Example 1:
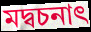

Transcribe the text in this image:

মদ্বচনাৎ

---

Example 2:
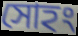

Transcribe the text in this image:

সোহং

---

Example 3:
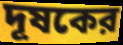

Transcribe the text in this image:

দূষকের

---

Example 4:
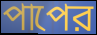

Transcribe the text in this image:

পাপের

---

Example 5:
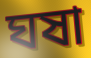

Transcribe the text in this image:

ঘষা